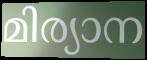
മിര്യാന